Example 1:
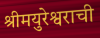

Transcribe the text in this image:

श्रीमयुरेश्वराची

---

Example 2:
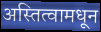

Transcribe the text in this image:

अस्तित्वामधून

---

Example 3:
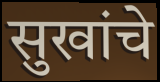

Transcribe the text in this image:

सुखांचे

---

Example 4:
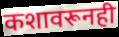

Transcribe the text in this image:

कशावरूनही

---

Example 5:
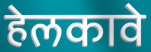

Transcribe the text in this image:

हेलकावे